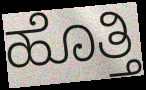
ಹೊತ್ತಿ